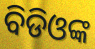
ବିଡିଓଙ୍କ